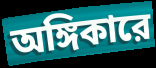
অঙ্গিকারে